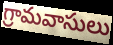
గ్రామవాసులు